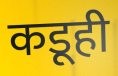
कडूही